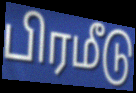
பிரமீடு